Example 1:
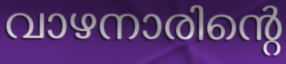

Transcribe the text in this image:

വാഴനാരിന്റെ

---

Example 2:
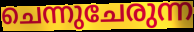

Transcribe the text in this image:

ചെന്നുചേരുന്ന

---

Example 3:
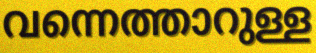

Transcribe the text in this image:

വന്നെത്താറുള്ള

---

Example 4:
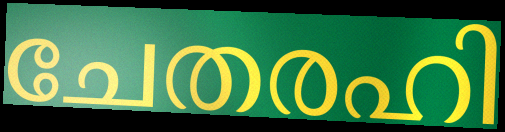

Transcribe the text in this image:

ചേതരഹി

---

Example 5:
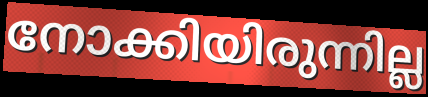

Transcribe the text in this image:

നോക്കിയിരുന്നില്ല